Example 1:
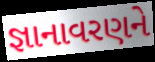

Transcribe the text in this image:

જ્ઞાનાવરણને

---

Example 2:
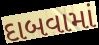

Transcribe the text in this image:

દાબવામાં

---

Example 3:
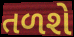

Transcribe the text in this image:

તળશે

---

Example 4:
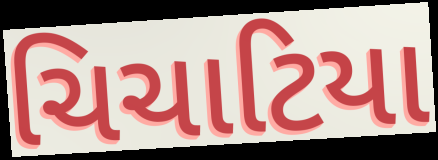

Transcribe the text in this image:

ચિચાટિયા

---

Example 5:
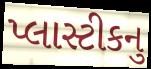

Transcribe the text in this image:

પ્લાસ્ટીકનુ